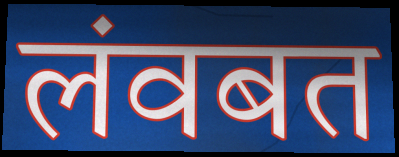
लंवबत